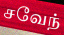
சவேந்